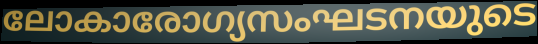
ലോകാരോഗ്യസംഘടനയുടെ